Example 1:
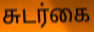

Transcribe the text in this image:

சுடர்கை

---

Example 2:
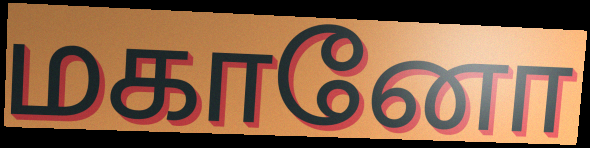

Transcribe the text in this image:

மகானோ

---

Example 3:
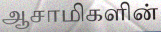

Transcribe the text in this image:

ஆசாமிகளின்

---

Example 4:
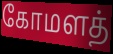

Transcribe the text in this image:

கோமளத்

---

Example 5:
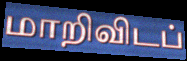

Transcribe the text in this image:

மாறிவிடப்